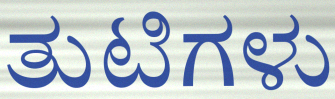
ತುಟಿಗಳು